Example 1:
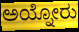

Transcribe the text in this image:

ಅಯ್ನೋರು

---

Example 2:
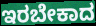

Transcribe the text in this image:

ಇರಬೇಕಾದ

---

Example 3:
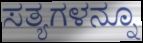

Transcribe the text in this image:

ಸತ್ಯಗಳನ್ನೂ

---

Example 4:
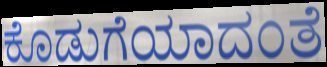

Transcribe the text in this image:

ಕೊಡುಗೆಯಾದಂತೆ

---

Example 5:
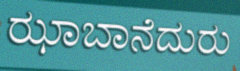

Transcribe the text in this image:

ಝಾಬಾನೆದುರು